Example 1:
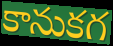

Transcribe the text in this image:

కానుకగ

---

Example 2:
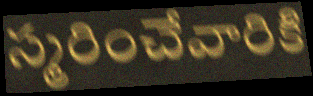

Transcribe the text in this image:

స్మరించేవారికి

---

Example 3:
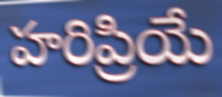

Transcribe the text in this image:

హరిప్రియే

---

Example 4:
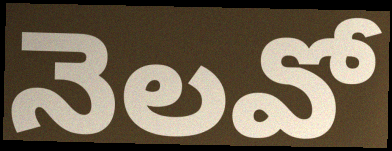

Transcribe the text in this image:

నెలవో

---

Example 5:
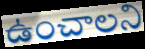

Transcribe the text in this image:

ఉంచాలని